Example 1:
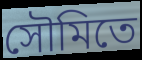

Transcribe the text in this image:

সৌমিতে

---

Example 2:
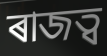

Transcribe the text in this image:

ৰাজত্ব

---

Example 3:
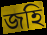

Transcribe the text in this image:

জহি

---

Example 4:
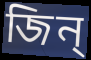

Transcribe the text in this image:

জিন্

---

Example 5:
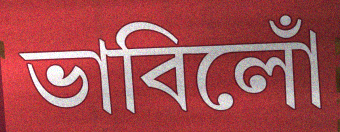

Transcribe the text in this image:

ভাবিলোঁ